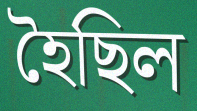
হৈছিল